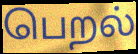
பெறல்